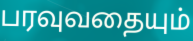
பரவுவதையும்